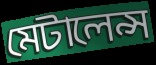
মেটালেন্স